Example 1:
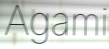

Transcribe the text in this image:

Agami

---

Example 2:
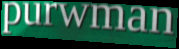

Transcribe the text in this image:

purwman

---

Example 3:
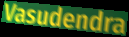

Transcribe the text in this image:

Vasudendra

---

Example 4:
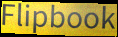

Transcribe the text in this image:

Flipbook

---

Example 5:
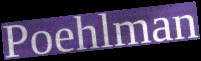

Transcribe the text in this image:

Poehlman